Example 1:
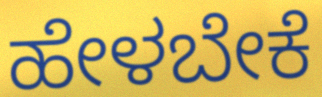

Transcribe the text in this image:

ಹೇಳಬೇಕೆ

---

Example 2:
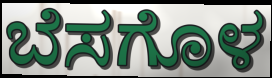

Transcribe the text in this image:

ಬೆಸಗೊಳ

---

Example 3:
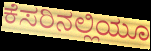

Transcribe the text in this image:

ಕೆಸರಿನಲ್ಲಿಯೂ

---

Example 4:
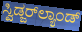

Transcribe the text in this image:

ಸ್ವಿಡ್ಜರ್‌ಲ್ಯಾಂಡ್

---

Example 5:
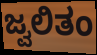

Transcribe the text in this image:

ಜ್ವಲಿತಂ